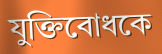
যুক্তিবোধকে